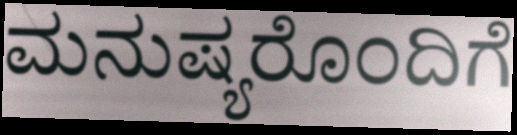
ಮನುಷ್ಯರೊಂದಿಗೆ